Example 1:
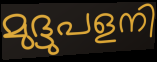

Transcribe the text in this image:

മുദ്ദുപളനി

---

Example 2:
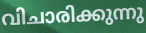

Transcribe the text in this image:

വിചാരിക്കുന്നു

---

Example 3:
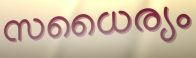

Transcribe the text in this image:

സധൈര്യം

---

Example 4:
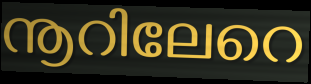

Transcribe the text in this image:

നൂറിലേറെ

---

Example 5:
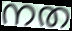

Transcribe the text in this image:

നത